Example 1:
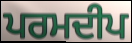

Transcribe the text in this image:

ਪਰਮਦੀਪ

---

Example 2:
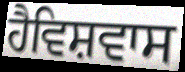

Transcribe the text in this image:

ਹੈਵਿਸ਼ਵਾਸ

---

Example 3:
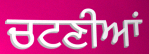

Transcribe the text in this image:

ਚਟਣੀਆਂ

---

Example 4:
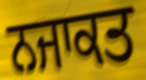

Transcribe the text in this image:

ਨਜਾਕਤ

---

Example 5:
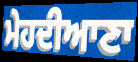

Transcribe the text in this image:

ਮੇਹਦੀਆਣਾ